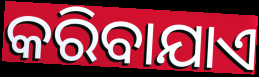
କରିବାଯାଏ